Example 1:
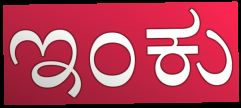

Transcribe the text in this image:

ಇಂಕು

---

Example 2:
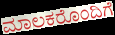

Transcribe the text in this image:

ಮಾಲಕರೊಂದಿಗೆ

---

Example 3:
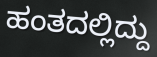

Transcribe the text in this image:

ಹಂತದಲ್ಲಿದ್ದು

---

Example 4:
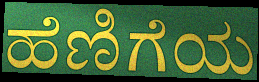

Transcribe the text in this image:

ಹೆಣಿಗೆಯ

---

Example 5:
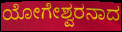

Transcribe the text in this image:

ಯೋಗೇಶ್ವರನಾದ